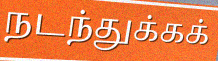
நடந்துக்கக்